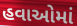
હવાઓમાં